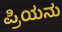
ಪ್ರಿಯನು